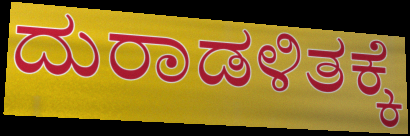
ದುರಾಡಳಿತಕ್ಕೆ